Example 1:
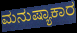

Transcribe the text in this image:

ಮನುಷ್ಯಾಕಾರ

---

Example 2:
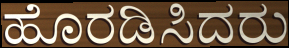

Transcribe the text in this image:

ಹೊರಡಿಸಿದರು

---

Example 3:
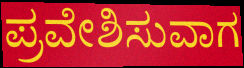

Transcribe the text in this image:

ಪ್ರವೇಶಿಸುವಾಗ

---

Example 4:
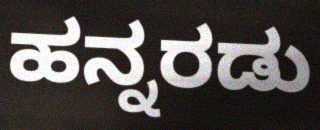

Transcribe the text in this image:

ಹನ್ನರಡು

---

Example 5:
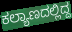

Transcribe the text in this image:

ಕಲ್ಯಾಣದಲ್ಲಿದ್ದ